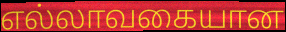
எல்லாவகையான